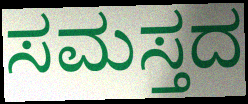
ಸಮಸ್ತದ